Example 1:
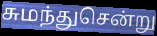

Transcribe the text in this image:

சுமந்துசென்று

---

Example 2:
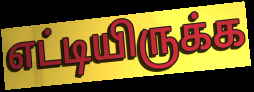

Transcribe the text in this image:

எட்டியிருக்க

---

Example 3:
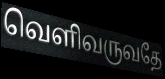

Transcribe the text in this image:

வெளிவருவதே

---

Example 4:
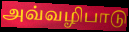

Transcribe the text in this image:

அவ்வழிபாடு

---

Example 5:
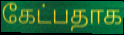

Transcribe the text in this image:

கேட்பதாக